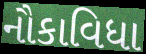
નૌકાવિધા